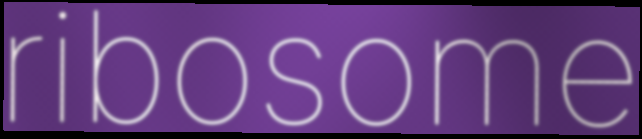
ribosome